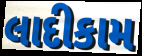
લાદીકામ